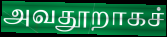
அவதூறாகச்